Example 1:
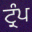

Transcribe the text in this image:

ਟ੍ਰੰਪ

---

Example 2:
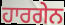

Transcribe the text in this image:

ਹਾਰਗੇਨ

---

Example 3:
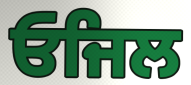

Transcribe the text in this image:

ਓਜਿਲ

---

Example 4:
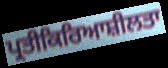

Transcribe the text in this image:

ਪ੍ਰਤੀਕਿਰਿਆਸ਼ੀਲਤਾ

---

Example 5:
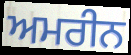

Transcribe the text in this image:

ਅਮਰੀਨ